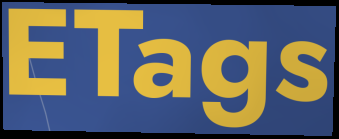
ETags